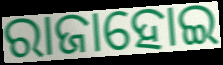
ରାଜାହୋଇ